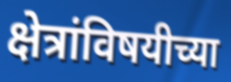
क्षेत्रांविषयीच्या